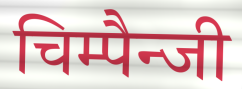
चिम्पैन्जी